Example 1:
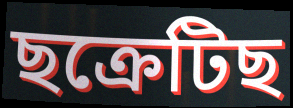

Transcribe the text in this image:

ছক্ৰেটিছ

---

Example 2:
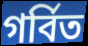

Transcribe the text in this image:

গৰ্বিত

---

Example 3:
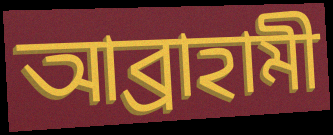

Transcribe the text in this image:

আব্ৰাহামী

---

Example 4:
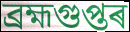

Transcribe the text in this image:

ব্ৰহ্মগুপ্তৰ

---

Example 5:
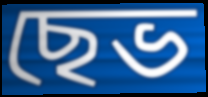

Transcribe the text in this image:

ছেভ